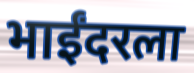
भाईंदरला